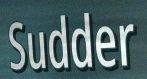
Sudder